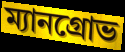
ম্যানগ্রোভ